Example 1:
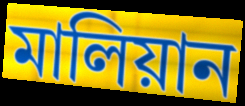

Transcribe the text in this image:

মালিয়ান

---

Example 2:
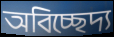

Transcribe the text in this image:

অবিচ্ছেদ্য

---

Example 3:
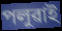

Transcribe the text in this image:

পলুৱাই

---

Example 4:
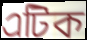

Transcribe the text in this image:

এটিক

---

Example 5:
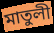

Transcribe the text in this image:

মাতুলী